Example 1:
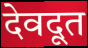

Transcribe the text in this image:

देवदूत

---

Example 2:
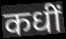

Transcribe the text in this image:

कधीं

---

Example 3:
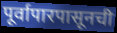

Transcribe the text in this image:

पूर्वापारपासूनची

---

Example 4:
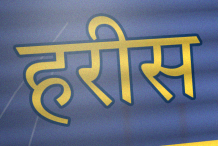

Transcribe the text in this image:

हरीस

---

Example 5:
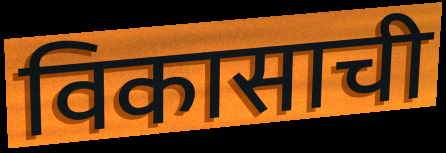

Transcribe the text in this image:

विकासाची